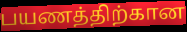
பயணத்திற்கான